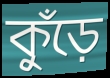
কুঁড়ে